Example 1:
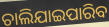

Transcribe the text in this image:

ଚାଲିଯାଇପାରିବ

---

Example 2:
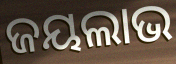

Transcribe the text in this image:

ଜୟଲାଭ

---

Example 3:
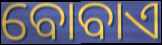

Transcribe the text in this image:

ବୋବାଏ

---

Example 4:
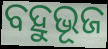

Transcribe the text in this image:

ବହୁଭୂଜ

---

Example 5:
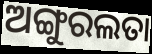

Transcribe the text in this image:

ଅଙ୍ଗୁରଲତା